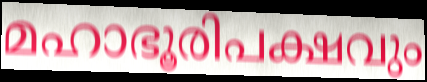
മഹാഭൂരിപക്ഷവും